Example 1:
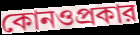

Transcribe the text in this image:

কোনওপ্রকার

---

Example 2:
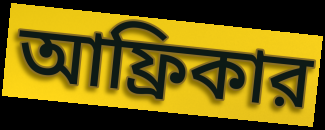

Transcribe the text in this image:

আফ্রিকার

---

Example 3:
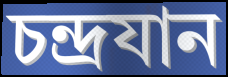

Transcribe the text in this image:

চন্দ্রযান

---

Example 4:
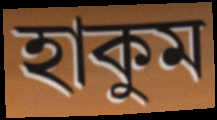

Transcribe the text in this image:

হাকুম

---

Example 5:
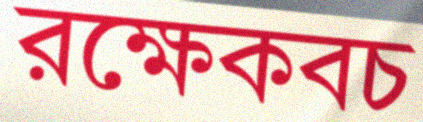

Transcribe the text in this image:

রক্ষেকবচ